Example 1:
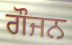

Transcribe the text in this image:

ਗੌਜਨ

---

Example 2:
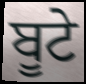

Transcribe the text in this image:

ਬੂਟੇ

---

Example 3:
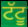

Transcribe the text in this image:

ਟੱਟੂ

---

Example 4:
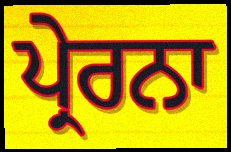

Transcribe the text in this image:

ਪ੍ਰੇਰਨਾ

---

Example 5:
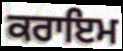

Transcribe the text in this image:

ਕਰਾਇਮ